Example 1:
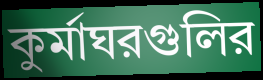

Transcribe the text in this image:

কুর্মাঘরগুলির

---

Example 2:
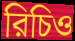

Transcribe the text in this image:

রিচিও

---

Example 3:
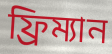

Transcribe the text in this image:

ফ্রিম্যান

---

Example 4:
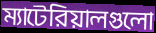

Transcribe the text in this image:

ম্যাটেরিয়ালগুলো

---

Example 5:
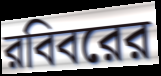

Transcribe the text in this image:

রবিবরের